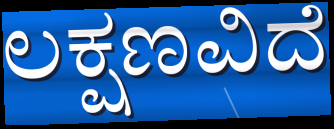
ಲಕ್ಷಣವಿದೆ